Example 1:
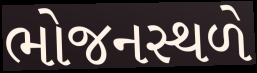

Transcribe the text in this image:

ભોજનસ્થળે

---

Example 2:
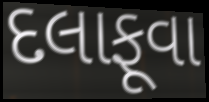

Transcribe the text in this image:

દલાફૂવા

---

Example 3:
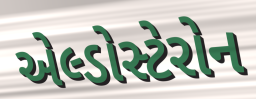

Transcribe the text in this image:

એલ્ડોસ્ટેરોન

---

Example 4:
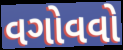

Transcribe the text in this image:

વગોવવો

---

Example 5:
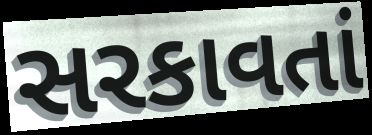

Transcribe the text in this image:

સરકાવતાં